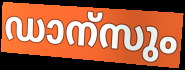
ഡാന്സും